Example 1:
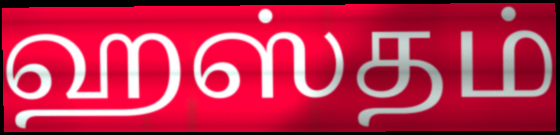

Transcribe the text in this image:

ஹஸ்தம்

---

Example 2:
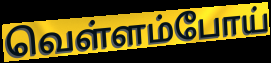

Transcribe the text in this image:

வெள்ளம்போய்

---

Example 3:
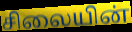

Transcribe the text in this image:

சிலையின்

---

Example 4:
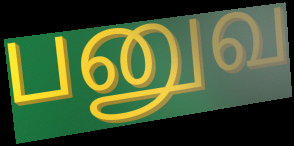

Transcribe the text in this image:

பனுவ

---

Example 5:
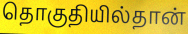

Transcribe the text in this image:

தொகுதியில்தான்